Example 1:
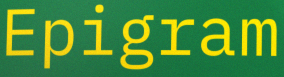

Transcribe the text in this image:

Epigram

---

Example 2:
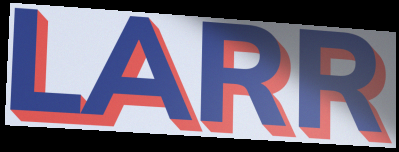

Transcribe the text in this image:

LARR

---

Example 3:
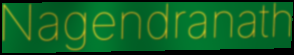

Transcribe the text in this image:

Nagendranath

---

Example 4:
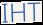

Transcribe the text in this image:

IHT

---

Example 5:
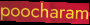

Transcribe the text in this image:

poocharam